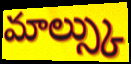
మాల్స్కు